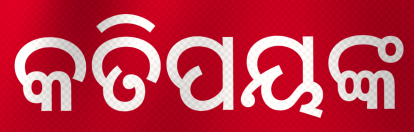
କତିପୟଙ୍କ